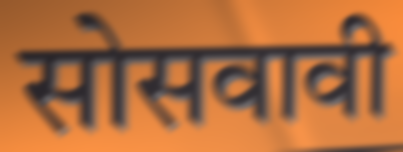
सोसवावी